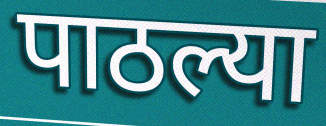
पाठल्या